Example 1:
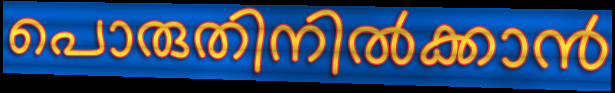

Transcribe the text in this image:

പൊരുതിനിൽക്കാൻ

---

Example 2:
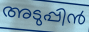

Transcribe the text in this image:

അടുപ്പിൻ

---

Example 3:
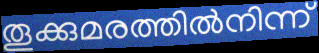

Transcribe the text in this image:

തൂക്കുമരത്തിൽനിന്ന്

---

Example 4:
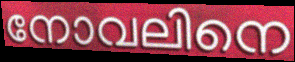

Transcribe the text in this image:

നോവലിനെ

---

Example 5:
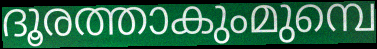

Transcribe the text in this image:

ദൂരത്താകുംമുമ്പെ